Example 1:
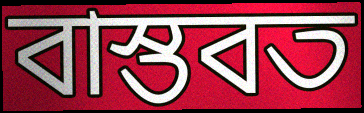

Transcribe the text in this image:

বাস্তবত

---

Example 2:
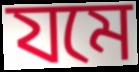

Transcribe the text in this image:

যমে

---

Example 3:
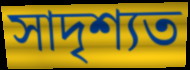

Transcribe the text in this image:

সাদৃশ্যত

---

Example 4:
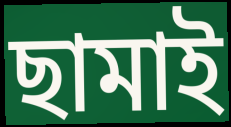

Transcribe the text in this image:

ছামাই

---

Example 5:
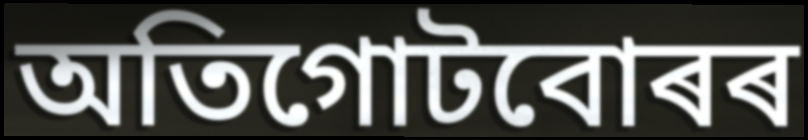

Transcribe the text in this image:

অতিগোটবোৰৰ